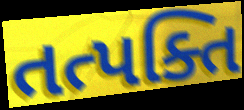
તત્પક્તિ